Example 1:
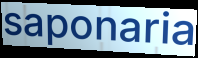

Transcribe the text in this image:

saponaria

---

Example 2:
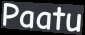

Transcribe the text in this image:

Paatu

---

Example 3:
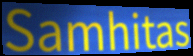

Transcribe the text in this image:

Samhitas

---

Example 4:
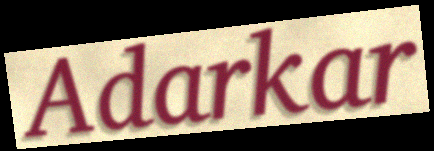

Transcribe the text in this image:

Adarkar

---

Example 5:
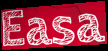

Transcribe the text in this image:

Easa